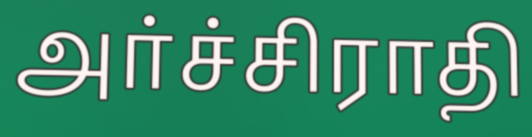
அர்ச்சிராதி